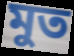
মুত